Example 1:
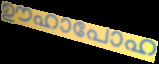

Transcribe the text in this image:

ഊഹാപോഹ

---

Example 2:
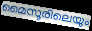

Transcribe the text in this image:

മൈസൂരിലെയും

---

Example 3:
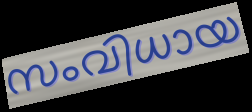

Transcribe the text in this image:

സംവിധായ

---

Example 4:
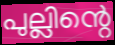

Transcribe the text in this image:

പുല്ലിന്റെ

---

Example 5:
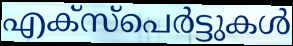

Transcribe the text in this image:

എക്സ്പെർട്ടുകൾ